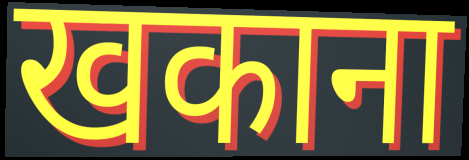
खकाना